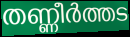
തണ്ണീർത്തട